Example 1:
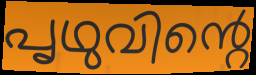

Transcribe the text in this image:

പൃഥുവിന്റെ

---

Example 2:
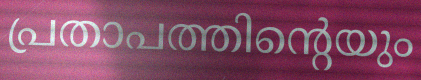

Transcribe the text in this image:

പ്രതാപത്തിന്റെയും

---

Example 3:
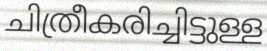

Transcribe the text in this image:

ചിത്രീകരിച്ചിട്ടുള്ള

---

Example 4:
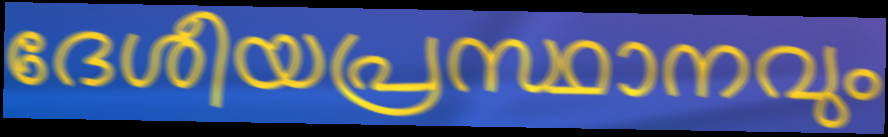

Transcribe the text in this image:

ദേശീയപ്രസ്ഥാനവും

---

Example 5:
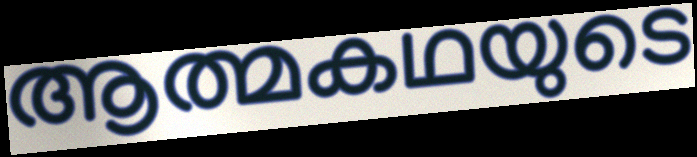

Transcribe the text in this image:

ആത്മകഥയുടെ